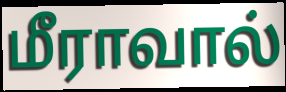
மீராவால்